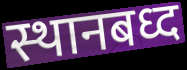
स्थानबध्द